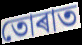
তোৰাত